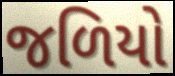
જળિયો